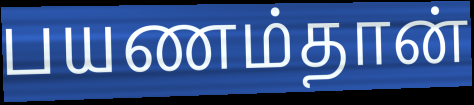
பயணம்தான்